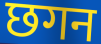
छगन